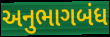
અનુભાગબંધ